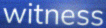
witness